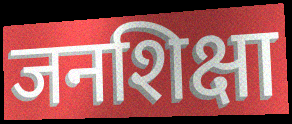
जनशिक्षा